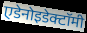
एडेनोइडेक्टॉमी